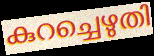
കുറച്ചെഴുതി